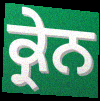
ਕ੍ਰੇਨ